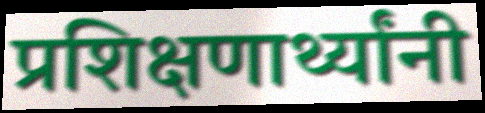
प्रशिक्षणार्थ्यांनी